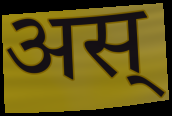
अस्